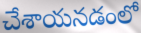
చేశాయనడంలో